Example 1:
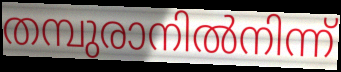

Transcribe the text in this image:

തമ്പുരാനിൽനിന്ന്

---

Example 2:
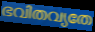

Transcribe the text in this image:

ഭവിതവ്യതേ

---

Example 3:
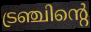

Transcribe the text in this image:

ട്രഞ്ചിന്റെ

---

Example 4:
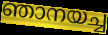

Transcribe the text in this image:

ഞാനയച്ച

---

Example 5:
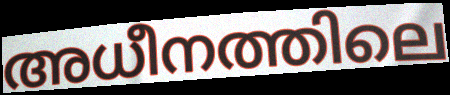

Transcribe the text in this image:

അധീനത്തിലെ